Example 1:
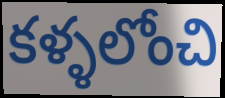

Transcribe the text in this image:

కళ్ళలోంచి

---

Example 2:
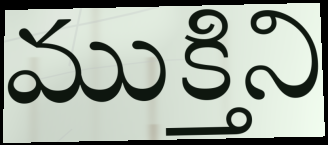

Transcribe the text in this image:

ముక్తిని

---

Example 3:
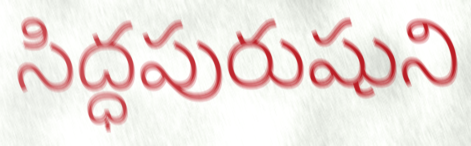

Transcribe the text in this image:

సిద్ధపురుషుని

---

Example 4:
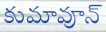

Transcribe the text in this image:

కుమావూన్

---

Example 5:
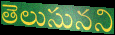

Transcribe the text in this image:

తెలుసునని